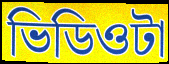
ভিডিওটা